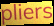
pliers